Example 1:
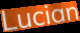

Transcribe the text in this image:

Lucian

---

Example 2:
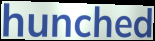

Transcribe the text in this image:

hunched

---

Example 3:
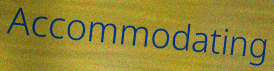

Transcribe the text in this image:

Accommodating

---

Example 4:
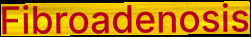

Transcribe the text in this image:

Fibroadenosis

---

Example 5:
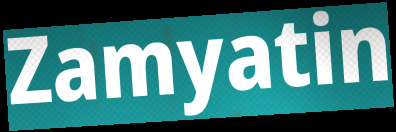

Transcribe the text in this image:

Zamyatin